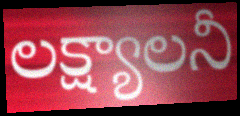
లక్ష్యాలనీ